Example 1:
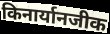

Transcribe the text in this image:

किनार्यानजीक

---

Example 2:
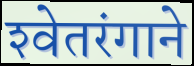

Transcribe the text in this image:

श्वेतरंगाने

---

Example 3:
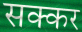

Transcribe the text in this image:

सक्कर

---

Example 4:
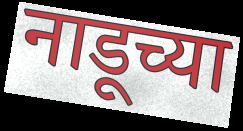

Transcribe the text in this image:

नाडूच्या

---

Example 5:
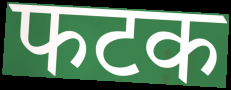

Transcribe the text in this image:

फटक